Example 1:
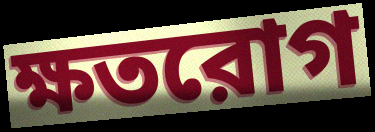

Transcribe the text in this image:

ক্ষতরোগ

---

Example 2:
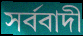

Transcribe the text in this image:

সর্ববাদী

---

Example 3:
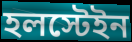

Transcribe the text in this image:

হলস্টেইন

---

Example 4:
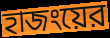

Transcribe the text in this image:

হাজংয়ের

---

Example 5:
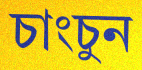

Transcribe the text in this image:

চাংচুন